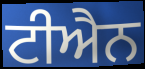
ਟੀਐਨ